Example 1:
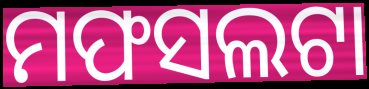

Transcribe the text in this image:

ମଫସଲଟା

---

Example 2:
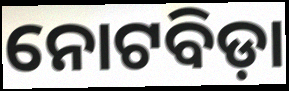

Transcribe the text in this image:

ନୋଟବିଡ଼ା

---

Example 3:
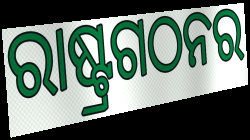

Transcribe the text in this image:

ରାଷ୍ଟ୍ରଗଠନର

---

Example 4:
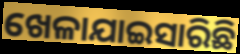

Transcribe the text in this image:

ଖେଳାଯାଇସାରିଛି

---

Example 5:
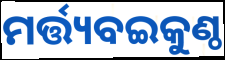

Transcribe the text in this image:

ମର୍ତ୍ତ୍ୟବଇକୁଣ୍ଠ